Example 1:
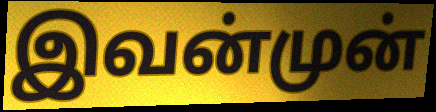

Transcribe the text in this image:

இவன்முன்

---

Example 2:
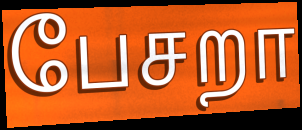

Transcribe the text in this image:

பேசறா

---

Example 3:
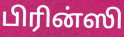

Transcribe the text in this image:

பிரின்ஸி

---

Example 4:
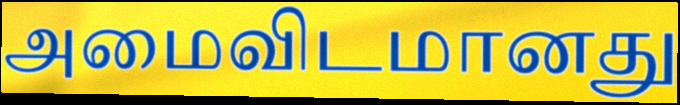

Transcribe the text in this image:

அமைவிடமானது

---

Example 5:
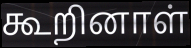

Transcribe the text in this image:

கூறினாள்